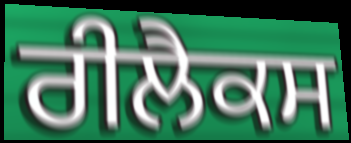
ਰੀਲੈਕਸ